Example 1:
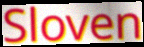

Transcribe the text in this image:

Sloven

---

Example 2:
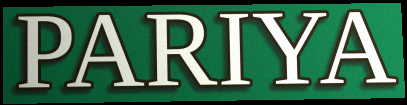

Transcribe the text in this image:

PARIYA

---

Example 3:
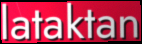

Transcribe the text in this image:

lataktan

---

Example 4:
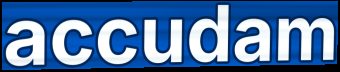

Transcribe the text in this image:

accudam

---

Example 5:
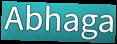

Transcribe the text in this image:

Abhaga